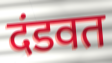
दंडवत